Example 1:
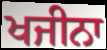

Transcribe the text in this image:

ਖਜੀਨਾ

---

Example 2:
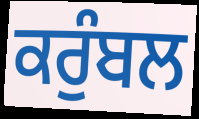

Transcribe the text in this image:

ਕਰੁੰਬਲ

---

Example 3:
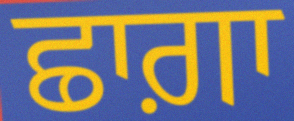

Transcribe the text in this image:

ਛਾਗ਼ਾ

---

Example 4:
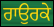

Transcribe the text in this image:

ਰਾਉਰਕੇ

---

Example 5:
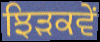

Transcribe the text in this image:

ਝਿੜਕਵੇਂ